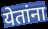
येतांना